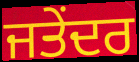
ਜਤੇਂਦਰ